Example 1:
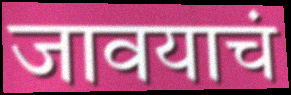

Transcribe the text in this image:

जावयाचं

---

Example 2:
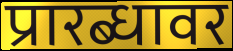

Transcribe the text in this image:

प्रारब्धावर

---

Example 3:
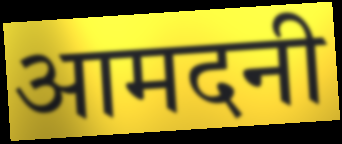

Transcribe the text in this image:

आमदनी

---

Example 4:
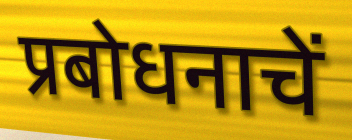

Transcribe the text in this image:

प्रबोधनाचें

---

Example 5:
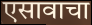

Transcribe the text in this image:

एसावाचा